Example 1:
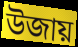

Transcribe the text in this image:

উজায়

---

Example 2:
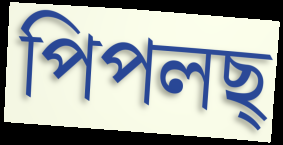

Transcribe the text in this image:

পিপলছ্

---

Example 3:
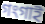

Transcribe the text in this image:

গংগাই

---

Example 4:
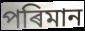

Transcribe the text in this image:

পৰিমান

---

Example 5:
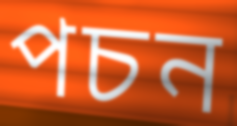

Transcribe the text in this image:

পচন